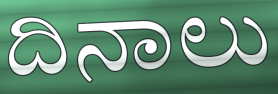
ದಿನಾಲು